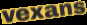
vexans